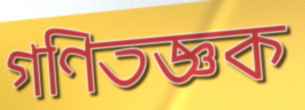
গণিতজ্ঞক